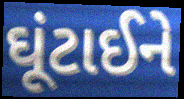
ઘૂંટાઈને